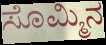
ಸೊಮ್ಮಿನ